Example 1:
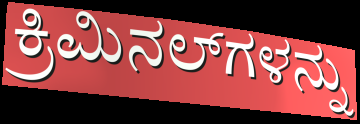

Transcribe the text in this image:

ಕ್ರಿಮಿನಲ್‍ಗಳನ್ನು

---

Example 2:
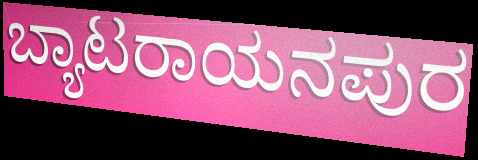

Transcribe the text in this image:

ಬ್ಯಾಟರಾಯನಪುರ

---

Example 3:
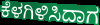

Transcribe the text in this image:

ಕೆಳಗಿಳಿಸಿದಾಗ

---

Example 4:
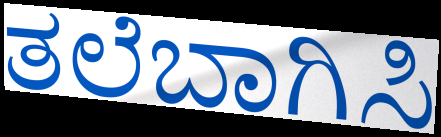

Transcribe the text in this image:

ತಲೆಬಾಗಿಸಿ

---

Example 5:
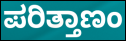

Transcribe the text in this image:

ಪರಿತ್ತಾಣಂ